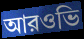
আরওভি